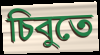
চিবুতে